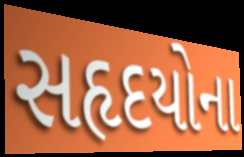
સહૃદયોના